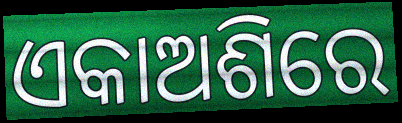
ଏକାଅଶିରେ